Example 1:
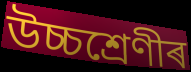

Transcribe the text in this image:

উচ্চশ্ৰেণীৰ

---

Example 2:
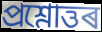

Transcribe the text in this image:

প্ৰশ্নোত্তৰ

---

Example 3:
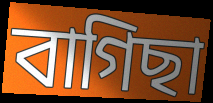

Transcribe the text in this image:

বাগিছা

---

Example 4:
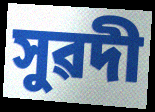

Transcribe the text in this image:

সুৱদী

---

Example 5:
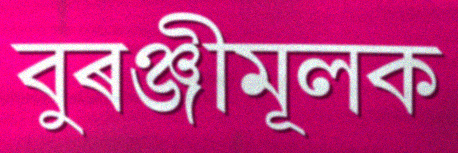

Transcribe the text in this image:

বুৰঞ্জীমূলক